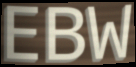
EBW